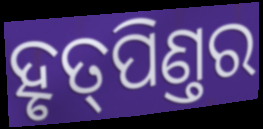
ହୃତ୍‌ପିଣ୍ତର